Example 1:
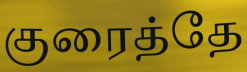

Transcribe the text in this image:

குரைத்தே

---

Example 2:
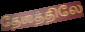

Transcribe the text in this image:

தேஶத்திலே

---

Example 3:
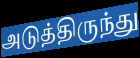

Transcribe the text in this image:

அடுத்திருந்து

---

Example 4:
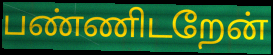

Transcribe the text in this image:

பண்ணிடறேன்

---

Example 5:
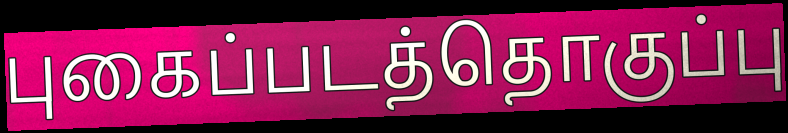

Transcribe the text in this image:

புகைப்படத்தொகுப்பு